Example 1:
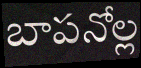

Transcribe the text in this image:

బాపనోల్ల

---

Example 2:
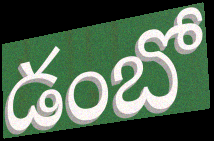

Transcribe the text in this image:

డంబో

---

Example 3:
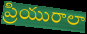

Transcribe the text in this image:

ప్రియురాలా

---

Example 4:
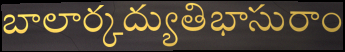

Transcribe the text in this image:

బాలార్కద్యుతిభాసురాం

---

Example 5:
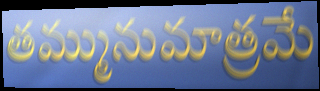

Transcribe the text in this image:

తమ్మునుమాత్రమే